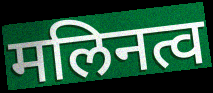
मलिनत्व